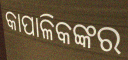
କାପାଳିକଙ୍କର